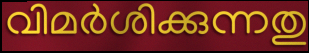
വിമർശിക്കുന്നതു